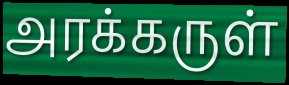
அரக்கருள்